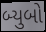
બ્યુબો